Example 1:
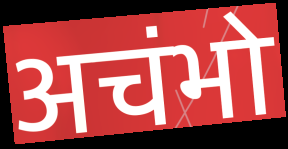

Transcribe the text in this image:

अचंभो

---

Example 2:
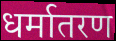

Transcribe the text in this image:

धर्मातरण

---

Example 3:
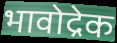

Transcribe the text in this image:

भावोद्रेक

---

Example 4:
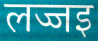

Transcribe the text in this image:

लज्जइ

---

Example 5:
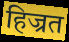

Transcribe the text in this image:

हिज्रत